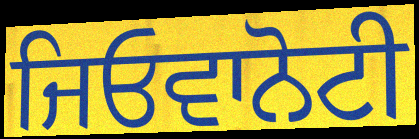
ਜਿਓਵਾਨੋਟੀ